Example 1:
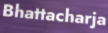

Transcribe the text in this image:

Bhattacharja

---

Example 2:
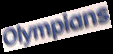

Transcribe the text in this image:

Olympians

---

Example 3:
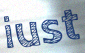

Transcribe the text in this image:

iust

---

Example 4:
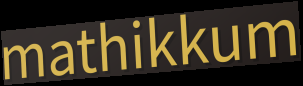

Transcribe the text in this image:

mathikkum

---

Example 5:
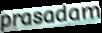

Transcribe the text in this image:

prasadam